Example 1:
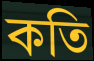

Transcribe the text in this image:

কতি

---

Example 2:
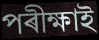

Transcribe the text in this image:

পৰীক্ষাই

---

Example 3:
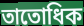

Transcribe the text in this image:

তাতোধিক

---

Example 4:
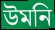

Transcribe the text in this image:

উমনি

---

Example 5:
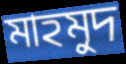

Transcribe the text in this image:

মাহমুদ